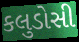
કલુડોસી